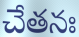
చేతనః